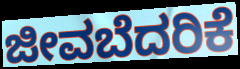
ಜೀವಬೆದರಿಕೆ